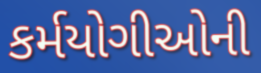
કર્મયોગીઓની